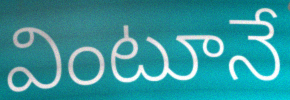
వింటూనే